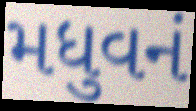
મધુવનં